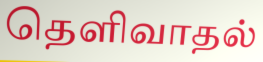
தெளிவாதல்